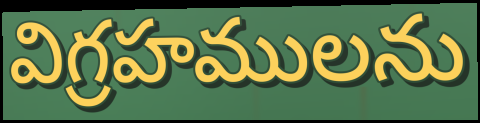
విగ్రహములను